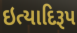
ઇત્યાદિરૂપ